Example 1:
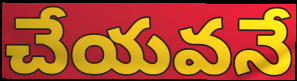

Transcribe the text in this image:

చేయవనే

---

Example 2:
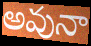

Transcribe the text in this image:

అవునా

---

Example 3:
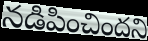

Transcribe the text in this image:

నడిపించిందని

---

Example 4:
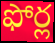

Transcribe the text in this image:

ఫోర్ల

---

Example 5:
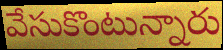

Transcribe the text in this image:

వేసుకొంటున్నారు